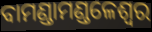
ବାମଣ୍ଡାମଣ୍ଡଳେଶ୍ୱର